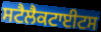
ਸਟੈਲੈਕਟਾਈਟਸ